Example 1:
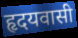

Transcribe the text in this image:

हृदयवासी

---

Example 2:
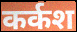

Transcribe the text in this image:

कर्कश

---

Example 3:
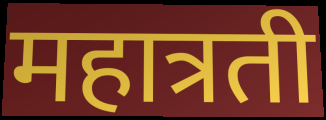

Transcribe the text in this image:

महात्रती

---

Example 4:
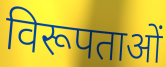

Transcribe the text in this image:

विरूपताओं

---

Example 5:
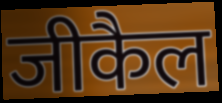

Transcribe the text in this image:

जीकैल